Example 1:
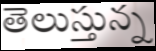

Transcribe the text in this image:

తెలుస్తున్న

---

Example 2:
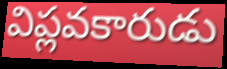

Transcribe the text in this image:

విప్లవకారుడు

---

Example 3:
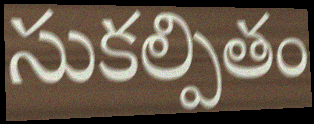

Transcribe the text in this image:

సుకల్పితం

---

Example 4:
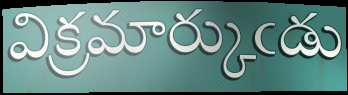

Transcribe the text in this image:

విక్రమార్కుఁడు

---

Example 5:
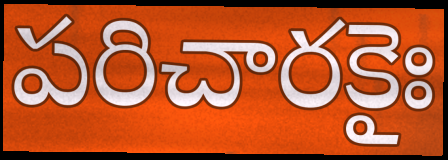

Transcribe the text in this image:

పరిచారకైః